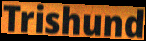
Trishund